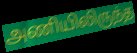
அணியிலிருந்த